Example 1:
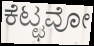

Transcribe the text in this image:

ಕೆಟ್ಟವೋ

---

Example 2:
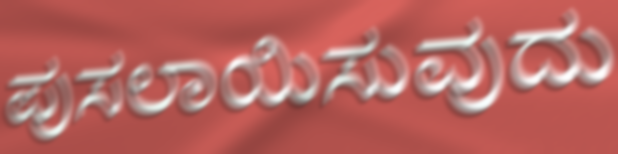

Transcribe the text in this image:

ಪುಸಲಾಯಿಸುವುದು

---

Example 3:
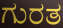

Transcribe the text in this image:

ಗುರತ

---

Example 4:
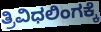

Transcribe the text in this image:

ತ್ರಿವಿಧಲಿಂಗಕ್ಕೆ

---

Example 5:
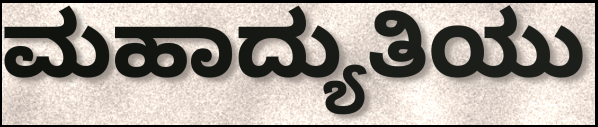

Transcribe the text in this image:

ಮಹಾದ್ಯುತಿಯು